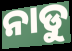
ନାଡୁ